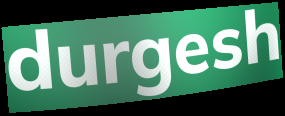
durgesh